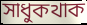
সাধুকথাক